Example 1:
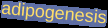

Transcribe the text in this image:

adipogenesis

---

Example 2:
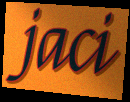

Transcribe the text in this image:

jaci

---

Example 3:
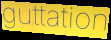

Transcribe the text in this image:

guttation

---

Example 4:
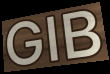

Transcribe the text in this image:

GIB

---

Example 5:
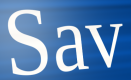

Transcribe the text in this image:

Sav